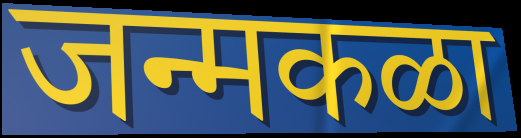
जन्मकळा